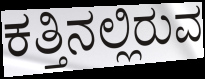
ಕತ್ತಿನಲ್ಲಿರುವ